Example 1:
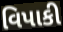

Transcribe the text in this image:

વિપાકી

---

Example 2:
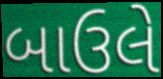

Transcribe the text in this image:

બાઉલે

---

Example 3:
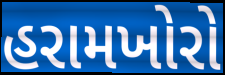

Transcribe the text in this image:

હરામખોરો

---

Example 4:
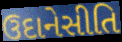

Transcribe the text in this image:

ઉદાનેસીતિ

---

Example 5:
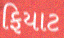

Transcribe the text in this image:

ફિયાટ